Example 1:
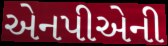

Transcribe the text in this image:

એનપીએની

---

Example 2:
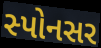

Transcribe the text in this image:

સ્પોનસર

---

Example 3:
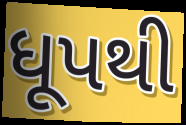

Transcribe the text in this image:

ધૂપથી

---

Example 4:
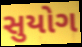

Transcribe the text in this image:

સુયોગ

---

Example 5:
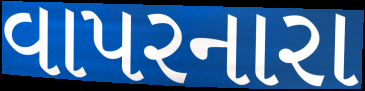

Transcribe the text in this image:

વાપરનારા